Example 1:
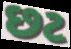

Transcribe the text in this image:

છટ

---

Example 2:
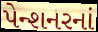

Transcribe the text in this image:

પેન્શનરનાં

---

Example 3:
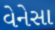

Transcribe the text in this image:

વેનેસા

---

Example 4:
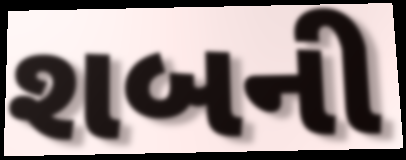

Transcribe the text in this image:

શબની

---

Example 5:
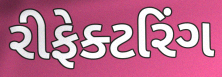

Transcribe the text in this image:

રીફેક્ટરિંગ